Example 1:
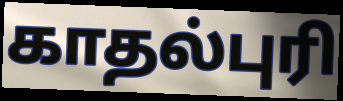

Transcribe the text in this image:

காதல்புரி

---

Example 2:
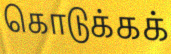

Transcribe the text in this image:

கொடுக்கக்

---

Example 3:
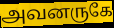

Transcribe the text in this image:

அவனருகே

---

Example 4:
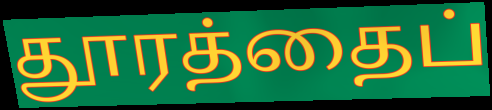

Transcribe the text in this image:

தூரத்தைப்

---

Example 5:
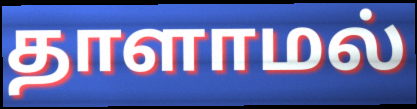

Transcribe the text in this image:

தாளாமல்